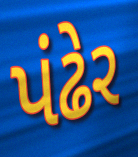
પંઢેર